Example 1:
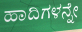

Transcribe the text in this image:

ಹಾದಿಗಳನ್ನೇ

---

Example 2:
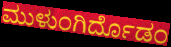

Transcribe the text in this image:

ಮುಳುಂಗಿರ್ದೊಡಂ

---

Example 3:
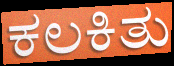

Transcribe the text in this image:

ಕಲಕಿತು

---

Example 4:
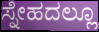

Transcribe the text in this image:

ಸ್ನೇಹದಲ್ಲೂ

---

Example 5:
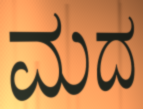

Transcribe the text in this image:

ಮದ